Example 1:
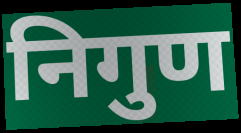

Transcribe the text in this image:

निगुण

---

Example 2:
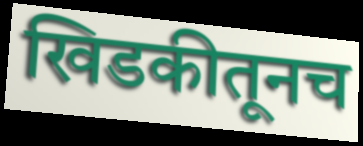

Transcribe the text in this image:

खिडकीतूनच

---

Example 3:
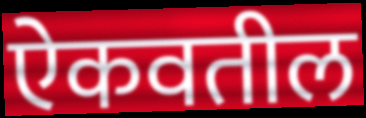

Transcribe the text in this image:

ऐकवतील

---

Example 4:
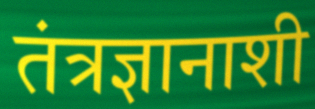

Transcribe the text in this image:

तंत्रज्ञानाशी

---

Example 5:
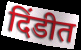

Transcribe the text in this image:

दिंडीत